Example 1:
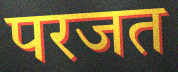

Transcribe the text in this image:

परजत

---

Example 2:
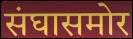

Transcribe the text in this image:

संघासमोर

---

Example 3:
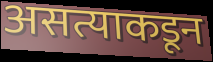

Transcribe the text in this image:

असत्याकडून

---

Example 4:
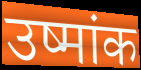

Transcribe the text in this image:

उष्मांक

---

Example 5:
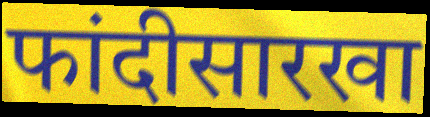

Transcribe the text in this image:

फांदीसारखा